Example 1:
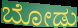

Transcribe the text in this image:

ಬೋಡು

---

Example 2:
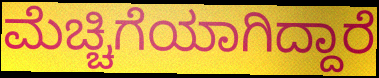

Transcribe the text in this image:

ಮೆಚ್ಚಿಗೆಯಾಗಿದ್ದಾರೆ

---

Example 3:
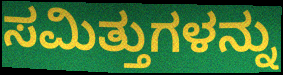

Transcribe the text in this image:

ಸಮಿತ್ತುಗಳನ್ನು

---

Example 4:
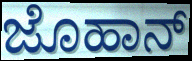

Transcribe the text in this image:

ಜೊಹಾನ್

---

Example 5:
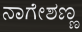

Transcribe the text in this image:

ನಾಗೇಶಣ್ಣ